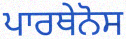
ਪਾਰਥੇਨੋਸ